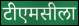
टीएमसीला